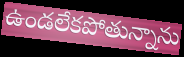
ఉండలేకపోతున్నాను